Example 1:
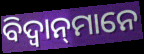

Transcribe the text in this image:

ବିଦ୍ୱାନ୍‌ମାନେ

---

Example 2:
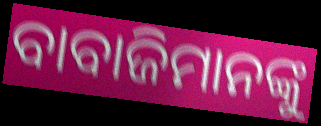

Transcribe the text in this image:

ବାବାଜିମାନଙ୍କୁ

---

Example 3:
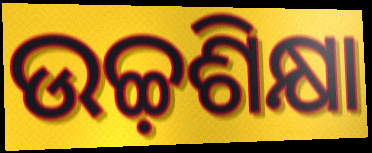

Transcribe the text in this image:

ଉଚ୍ଚ଼ଶିକ୍ଷା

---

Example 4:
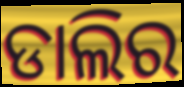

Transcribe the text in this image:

ଡାଲିର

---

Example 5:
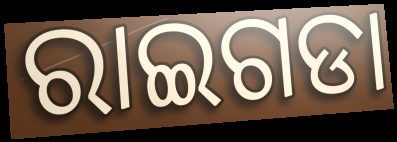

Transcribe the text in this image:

ରାଇଗଡା